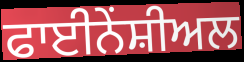
ਫਾਈਨੇਂਸ਼ੀਅਲ